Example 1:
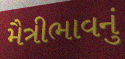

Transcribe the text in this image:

મૈત્રીભાવનું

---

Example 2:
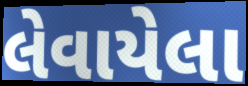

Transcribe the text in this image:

લેવાયેલા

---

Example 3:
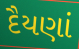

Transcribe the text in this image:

દૈયણાં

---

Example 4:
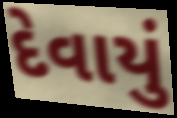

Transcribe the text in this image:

દેવાયું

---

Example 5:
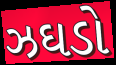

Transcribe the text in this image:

ઝઘડો